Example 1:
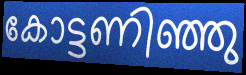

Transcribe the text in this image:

കോട്ടണിഞ്ഞു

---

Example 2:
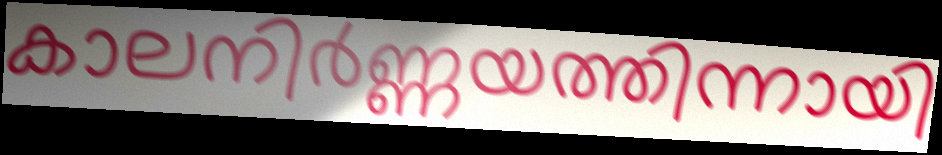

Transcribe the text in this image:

കാലനിർണ്ണയത്തിന്നായി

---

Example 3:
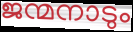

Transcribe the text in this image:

ജന്മനാടും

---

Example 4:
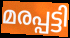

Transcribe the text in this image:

മരപ്പട്ടി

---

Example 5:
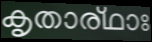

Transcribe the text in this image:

കൃതാര്ഥാഃ